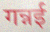
गन्नई